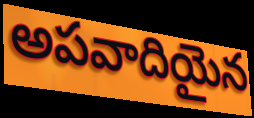
అపవాదియైన